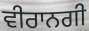
ਵੀਰਾਨਗੀ